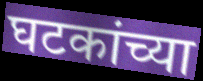
घटकांच्या